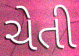
ચેતી